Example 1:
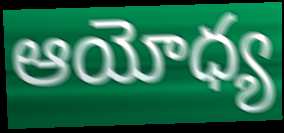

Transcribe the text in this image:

ఆయోధ్య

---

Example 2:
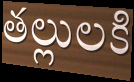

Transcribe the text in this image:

తల్లులకి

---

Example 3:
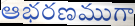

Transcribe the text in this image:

ఆభరణముగా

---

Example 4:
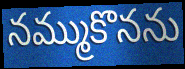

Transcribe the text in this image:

నమ్ముకొనను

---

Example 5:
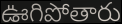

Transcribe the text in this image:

ఊగిపోతారు